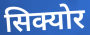
सिक्योर